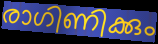
രാഗിണിക്കും